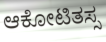
ಆಕೋಟಿತಸ್ಸ